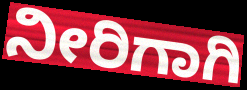
ನೀರಿಗಾಗಿ